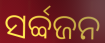
ସର୍ବ୍ବଜନ